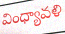
వింధ్యావళి